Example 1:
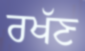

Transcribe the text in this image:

ਰਖੱਣ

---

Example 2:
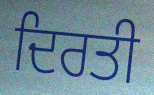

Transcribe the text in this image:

ਦਿਰਤੀ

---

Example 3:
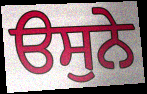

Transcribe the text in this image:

ੳਸੁਨੇ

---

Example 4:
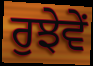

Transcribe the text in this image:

ਰੁਝੇਵੇਂ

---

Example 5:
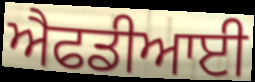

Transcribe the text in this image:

ਐਫਡੀਆਈ